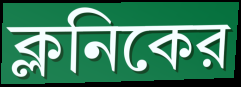
ক্লনিকের